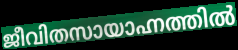
ജീവിതസായാഹ്നത്തിൽ